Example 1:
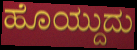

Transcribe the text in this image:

ಹೊಯ್ದುದು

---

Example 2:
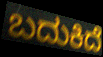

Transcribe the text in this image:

ಬದುಕಿದೆ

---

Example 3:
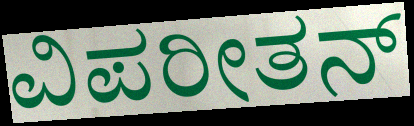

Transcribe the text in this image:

ವಿಪರೀತನ್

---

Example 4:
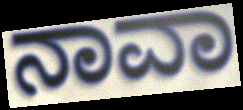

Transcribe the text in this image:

ನಾವಾ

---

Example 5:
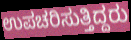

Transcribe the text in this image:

ಉಪಚರಿಸುತ್ತಿದ್ದರು